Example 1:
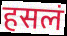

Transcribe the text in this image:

हसलं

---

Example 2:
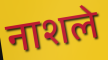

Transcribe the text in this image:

नाशले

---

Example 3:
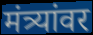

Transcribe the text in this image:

मंत्र्यांवर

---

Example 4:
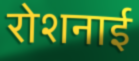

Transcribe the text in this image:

रोशनाई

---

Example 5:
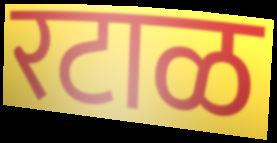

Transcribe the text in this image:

रटाळ